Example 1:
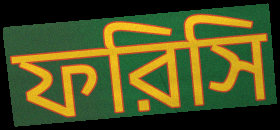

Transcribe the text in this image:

ফরিসি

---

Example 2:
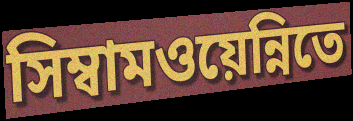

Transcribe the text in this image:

সিম্বামওয়েন্নিতে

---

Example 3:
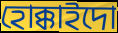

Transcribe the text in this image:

হোক্কাইদো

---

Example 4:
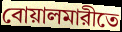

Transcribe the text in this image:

বোয়ালমারীতে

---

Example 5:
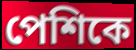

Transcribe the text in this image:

পেশিকে